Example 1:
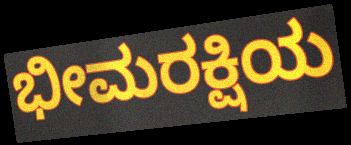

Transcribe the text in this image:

ಭೀಮರಕ್ಷಿಯ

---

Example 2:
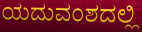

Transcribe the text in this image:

ಯದುವಂಶದಲ್ಲಿ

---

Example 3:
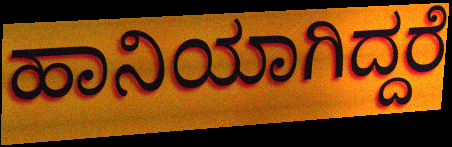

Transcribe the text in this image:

ಹಾನಿಯಾಗಿದ್ದರೆ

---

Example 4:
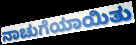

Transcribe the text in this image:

ನಾಚುಗೆಯಾಯಿತು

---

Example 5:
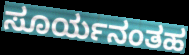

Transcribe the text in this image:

ಸೂರ್ಯನಂತಹ